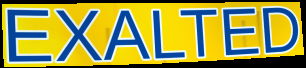
EXALTED